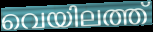
വെയിലത്ത്